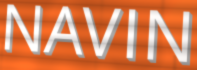
NAVIN